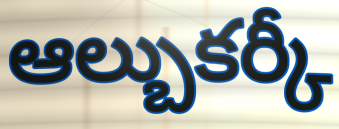
ఆల్బుకర్కీ